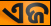
ଏଜ